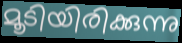
മൂടിയിരിക്കുന്നു